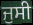
ਜੁਸੀ